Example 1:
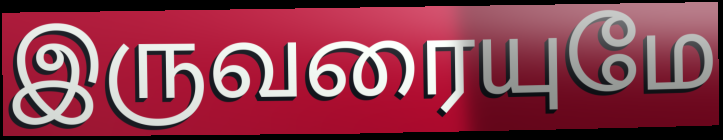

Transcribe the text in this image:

இருவரையுமே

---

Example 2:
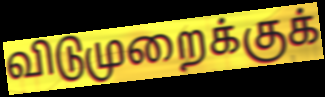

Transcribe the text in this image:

விடுமுறைக்குக்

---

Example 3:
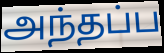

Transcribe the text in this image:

அந்தப்ப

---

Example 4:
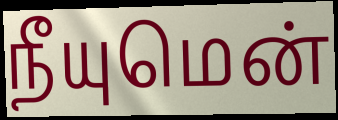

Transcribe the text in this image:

நீயுமென்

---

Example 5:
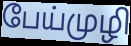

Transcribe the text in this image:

பேய்முழி